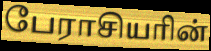
பேராசியரின்